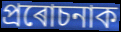
প্ৰৰোচনাক